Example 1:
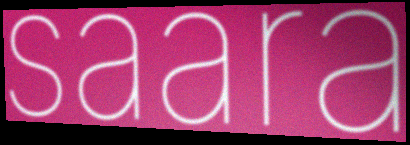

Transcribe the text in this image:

saara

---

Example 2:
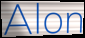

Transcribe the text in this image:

Alon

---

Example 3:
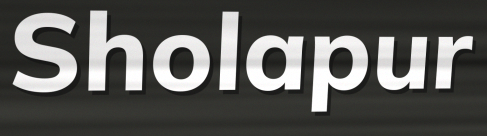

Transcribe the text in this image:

Sholapur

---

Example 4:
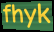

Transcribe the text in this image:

fhyk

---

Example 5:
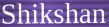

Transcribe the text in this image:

Shikshan